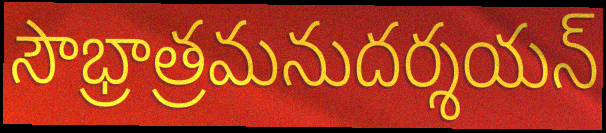
సౌభ్రాత్రమనుదర్శయన్